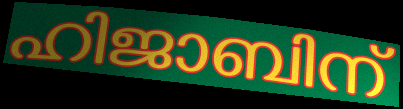
ഹിജാബിന്